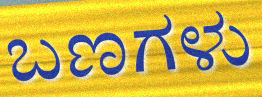
ಬಣಗಳು